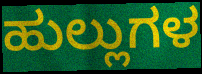
ಹುಲ್ಲುಗಳ